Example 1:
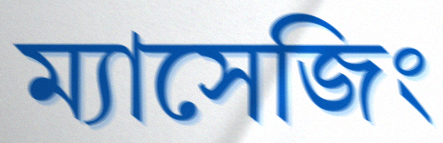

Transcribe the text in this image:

ম্যাসেজিং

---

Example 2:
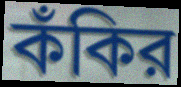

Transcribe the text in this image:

কঁকির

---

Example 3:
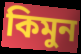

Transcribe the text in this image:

কিমুন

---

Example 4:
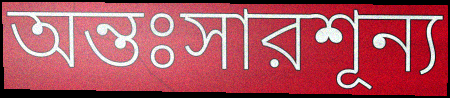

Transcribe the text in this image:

অন্তঃসারশূন্য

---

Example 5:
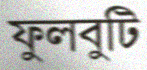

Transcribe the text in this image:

ফুলবুটি